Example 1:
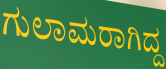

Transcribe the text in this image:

ಗುಲಾಮರಾಗಿದ್ದ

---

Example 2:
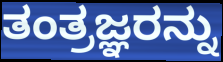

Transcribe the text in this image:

ತಂತ್ರಜ್ಞರನ್ನು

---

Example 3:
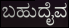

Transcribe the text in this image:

ಬಹುದೈವ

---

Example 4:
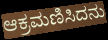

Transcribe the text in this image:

ಆಕ್ರಮಣಿಸಿದನು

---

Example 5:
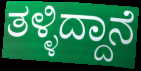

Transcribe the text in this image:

ತಳ್ಳಿದ್ದಾನೆ